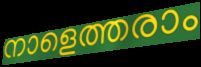
നാളെത്തരാം